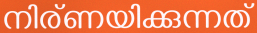
നിര്ണയിക്കുന്നത്